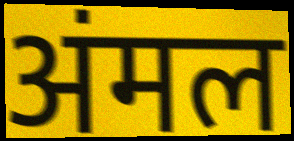
अंमल